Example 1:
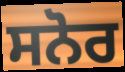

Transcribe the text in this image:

ਸਨੋਰ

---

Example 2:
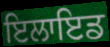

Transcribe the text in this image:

ਇਲਾਇਡ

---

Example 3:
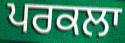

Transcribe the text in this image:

ਪਰਕਲਾ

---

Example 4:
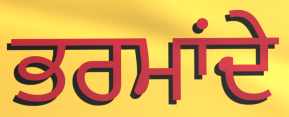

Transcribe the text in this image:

ਭਰਮਾਂਦੇ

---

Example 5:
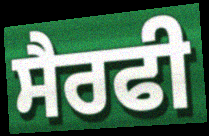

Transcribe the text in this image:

ਸੈਰਫੀ